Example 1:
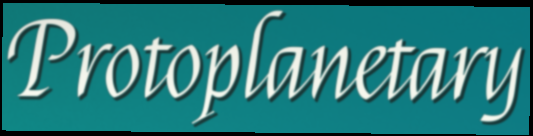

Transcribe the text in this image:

Protoplanetary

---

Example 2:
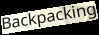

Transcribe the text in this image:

Backpacking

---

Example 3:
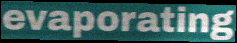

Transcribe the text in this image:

evaporating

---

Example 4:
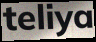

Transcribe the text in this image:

teliya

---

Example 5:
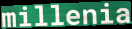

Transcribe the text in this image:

millenia